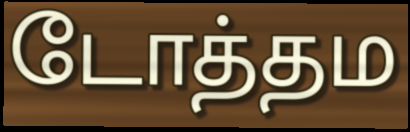
டோத்தம